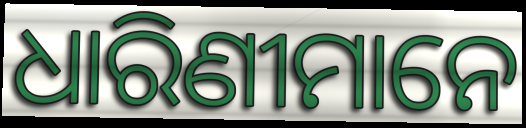
ଧାରିଣୀମାନେ